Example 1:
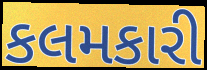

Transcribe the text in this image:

કલમકારી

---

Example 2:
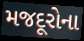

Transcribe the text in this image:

મજદૂરોના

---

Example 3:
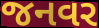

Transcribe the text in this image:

જનવર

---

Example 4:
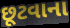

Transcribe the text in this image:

છૂટવાના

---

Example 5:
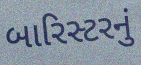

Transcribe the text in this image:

બારિસ્ટરનું